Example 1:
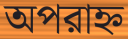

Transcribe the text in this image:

অপরাহ্ন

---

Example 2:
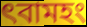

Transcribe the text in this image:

ৎবামহং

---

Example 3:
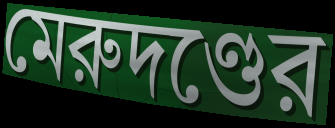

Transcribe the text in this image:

মেরুদণ্ডের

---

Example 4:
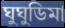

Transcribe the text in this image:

ঘুঘুডিমা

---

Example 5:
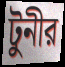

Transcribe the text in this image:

টুনীর